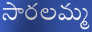
సారలమ్మ